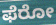
ಫೆರೋ